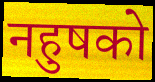
नहुषको